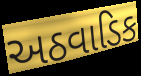
અઠવાડિક